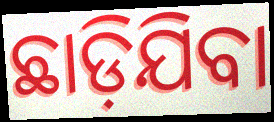
ଛାଡ଼ିଯିବା